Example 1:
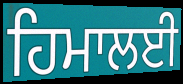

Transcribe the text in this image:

ਹਿਮਾਲਈ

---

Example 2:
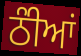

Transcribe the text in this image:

ਠੰੀਆਂ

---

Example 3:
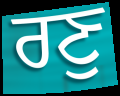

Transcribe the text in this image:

ਰਣੁ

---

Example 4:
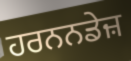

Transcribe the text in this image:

ਹਰਨਨਡੇਜ਼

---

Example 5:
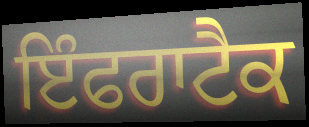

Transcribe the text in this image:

ਇੰਫਰਾਟੈਕ